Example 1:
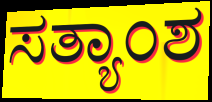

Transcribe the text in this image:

ಸತ್ಯಾಂಶ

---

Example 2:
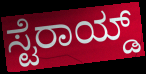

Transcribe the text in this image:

ಸ್ಟೆರಾಯ್ಡ್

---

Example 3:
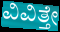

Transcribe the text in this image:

ವಿವಿತ್ತೇ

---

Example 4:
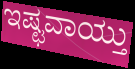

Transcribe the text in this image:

ಇಷ್ಟವಾಯ್ತು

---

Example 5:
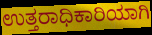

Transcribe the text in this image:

ಉತ್ತರಾಧಿಕಾರಿಯಾಗಿ